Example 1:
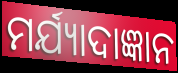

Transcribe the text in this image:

ମର୍ଯ୍ୟାଦାଜ୍ଞାନ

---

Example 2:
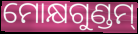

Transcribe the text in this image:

ମୋକ୍ଷଗୁଣ୍ଡମ୍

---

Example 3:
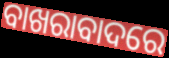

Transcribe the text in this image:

ବାଖରାବାଦରେ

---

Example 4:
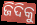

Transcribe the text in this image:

ଜିଦିକୁ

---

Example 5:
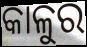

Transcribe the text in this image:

କାଳୁର